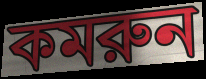
কমরুন